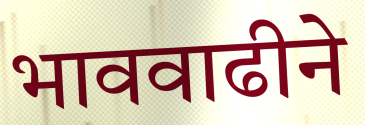
भाववाढीने